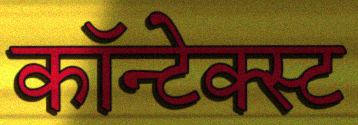
कॉन्टेक्स्ट